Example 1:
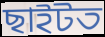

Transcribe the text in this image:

ছাইটত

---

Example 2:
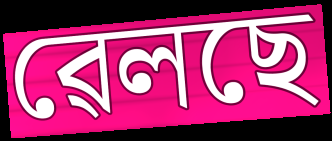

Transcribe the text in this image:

ৱেলছে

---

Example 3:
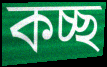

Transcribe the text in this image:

কচ্ছ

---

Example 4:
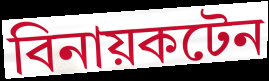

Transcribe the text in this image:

বিনায়কটেন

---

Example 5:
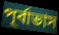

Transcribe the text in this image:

পূৰ্বাভাস